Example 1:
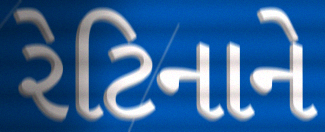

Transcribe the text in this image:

રેટિનાને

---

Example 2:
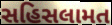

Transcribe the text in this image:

સહિસલામત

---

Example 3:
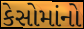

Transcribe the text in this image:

કેસોમાંનો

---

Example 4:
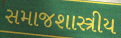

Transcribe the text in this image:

સમાજશાસ્ત્રીય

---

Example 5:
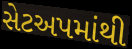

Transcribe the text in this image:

સેટઅપમાંથી